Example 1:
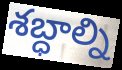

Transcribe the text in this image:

శబ్ధాల్ని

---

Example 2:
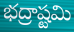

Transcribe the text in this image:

భద్రాష్టమి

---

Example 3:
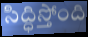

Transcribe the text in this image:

సిద్ధిస్తోంది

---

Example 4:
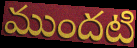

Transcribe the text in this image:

ముందటి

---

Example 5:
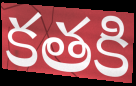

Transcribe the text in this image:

కతకి